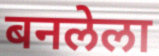
बनलेला